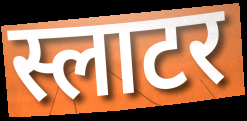
स्लाटर